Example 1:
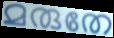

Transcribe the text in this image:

മരുതേ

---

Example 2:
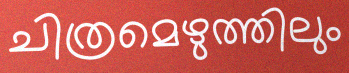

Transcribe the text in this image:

ചിത്രമെഴുത്തിലും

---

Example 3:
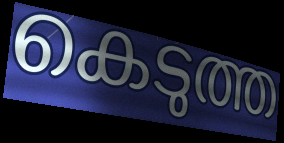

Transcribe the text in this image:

കെടുത്ത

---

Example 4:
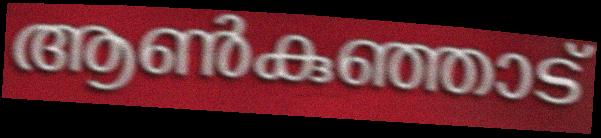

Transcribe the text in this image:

ആൺകുഞ്ഞാട്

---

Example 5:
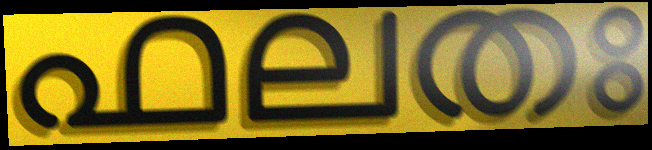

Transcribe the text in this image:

ഫലതഃ